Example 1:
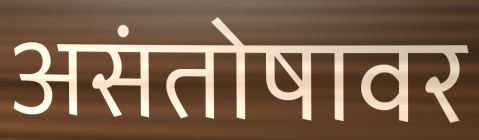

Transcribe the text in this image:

असंतोषावर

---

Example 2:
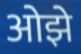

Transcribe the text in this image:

ओझे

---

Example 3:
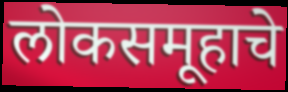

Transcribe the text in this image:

लोकसमूहाचे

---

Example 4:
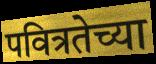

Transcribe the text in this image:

पवित्रतेच्या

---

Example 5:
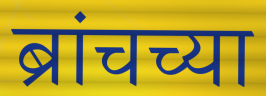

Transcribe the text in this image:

ब्रांचच्या